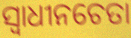
ସ୍ୱାଧୀନଚେତା